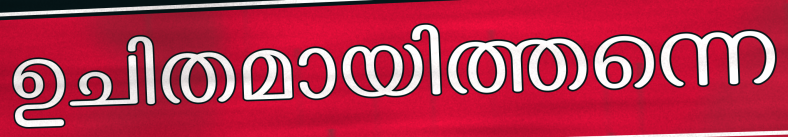
ഉചിതമായിത്തന്നെ